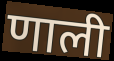
णाली